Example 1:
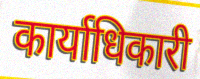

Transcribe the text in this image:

कार्याधिकारी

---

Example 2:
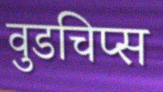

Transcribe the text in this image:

वुडचिप्स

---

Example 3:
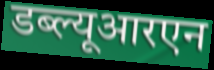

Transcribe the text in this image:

डब्ल्यूआरएन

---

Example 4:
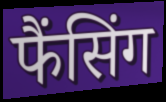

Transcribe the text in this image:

फैंसिंग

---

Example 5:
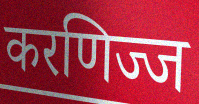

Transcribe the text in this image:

करणिज्ज